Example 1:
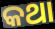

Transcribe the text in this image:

କଥା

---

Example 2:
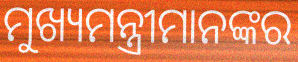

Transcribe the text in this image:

ମୁଖ୍ୟମନ୍ତ୍ରୀମାନଙ୍କର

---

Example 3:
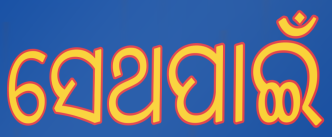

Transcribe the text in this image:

ସେଥପାଇଁ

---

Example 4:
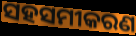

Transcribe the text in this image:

ସହସମୀକରଣ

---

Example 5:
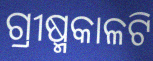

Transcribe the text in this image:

ଗ୍ରୀଷ୍ମକାଳଟି